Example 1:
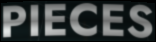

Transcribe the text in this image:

PIECES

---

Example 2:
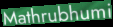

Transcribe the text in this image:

Mathrubhumi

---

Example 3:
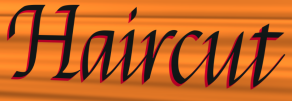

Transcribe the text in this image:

Haircut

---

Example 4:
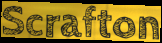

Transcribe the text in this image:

Scrafton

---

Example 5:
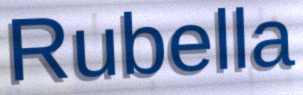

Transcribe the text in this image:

Rubella